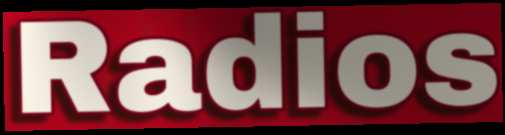
Radios